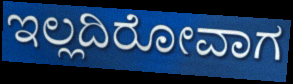
ಇಲ್ಲದಿರೋವಾಗ